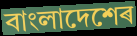
বাংলাদেশেৰ